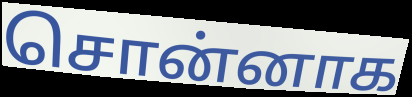
சொன்னாக